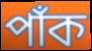
পাঁক